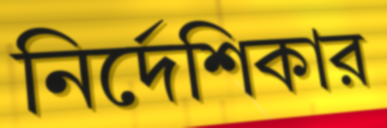
নির্দেশিকার